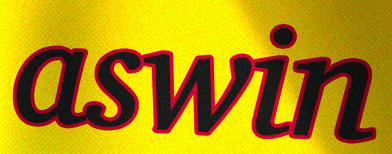
aswin